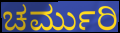
ಚರ್ಮುರಿ